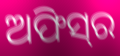
ଅଫିସ୍‌ର